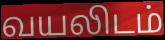
வயலிடம்